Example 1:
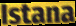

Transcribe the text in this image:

Istana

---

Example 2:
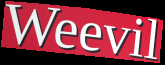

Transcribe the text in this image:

Weevil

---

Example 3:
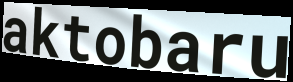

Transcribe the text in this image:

aktobaru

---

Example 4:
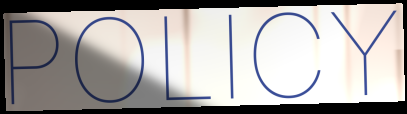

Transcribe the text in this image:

POLICY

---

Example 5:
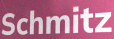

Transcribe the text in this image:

Schmitz